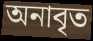
অনাবৃত